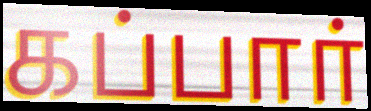
கப்பார்